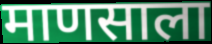
माणसाला